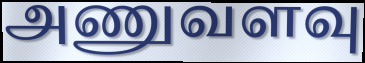
அணுவளவு